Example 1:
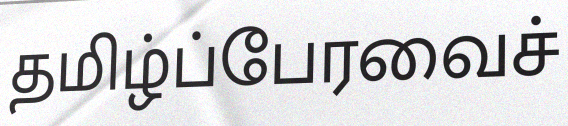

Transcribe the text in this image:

தமிழ்ப்பேரவைச்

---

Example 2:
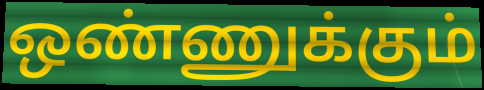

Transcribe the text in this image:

ஒண்ணுக்கும்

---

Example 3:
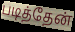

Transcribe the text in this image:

படித்தேன்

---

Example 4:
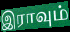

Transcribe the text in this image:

இராவும்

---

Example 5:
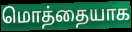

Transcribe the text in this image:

மொத்தையாக